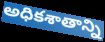
అధికశాతాన్ని